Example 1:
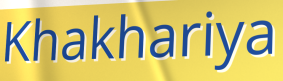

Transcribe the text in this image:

Khakhariya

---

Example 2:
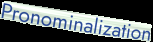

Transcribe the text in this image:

Pronominalization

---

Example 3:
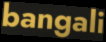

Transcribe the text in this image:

bangali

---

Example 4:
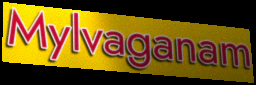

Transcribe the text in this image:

Mylvaganam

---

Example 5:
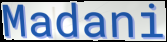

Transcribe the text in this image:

Madani